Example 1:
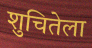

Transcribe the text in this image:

शुचितेला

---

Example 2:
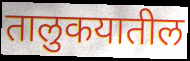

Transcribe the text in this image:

तालुकयातील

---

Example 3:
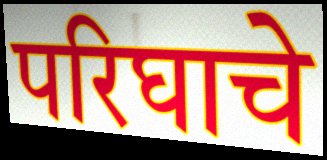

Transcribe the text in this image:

परिघाचे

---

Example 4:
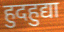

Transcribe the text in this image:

हुदहुद्या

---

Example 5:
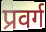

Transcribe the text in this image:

प्रवर्ग